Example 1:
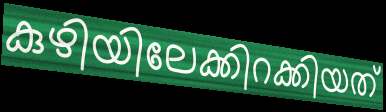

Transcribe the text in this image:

കുഴിയിലേക്കിറക്കിയത്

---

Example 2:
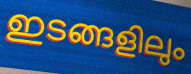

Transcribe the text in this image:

ഇടങ്ങളിലും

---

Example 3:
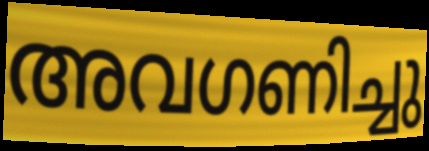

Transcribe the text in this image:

അവഗണിച്ചു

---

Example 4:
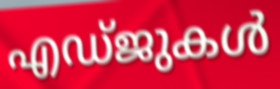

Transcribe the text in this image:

എഡ്ജുകൾ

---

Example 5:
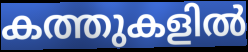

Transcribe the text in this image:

കത്തുകളിൽ